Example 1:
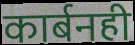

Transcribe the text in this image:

कार्बनही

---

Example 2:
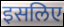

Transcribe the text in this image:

इसलिए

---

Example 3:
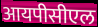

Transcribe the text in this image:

आयपीसीएल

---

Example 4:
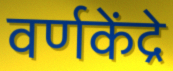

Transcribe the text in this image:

वर्णकेंद्रे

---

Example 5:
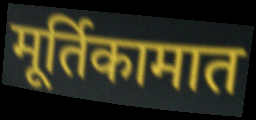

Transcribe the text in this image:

मूर्तिकामात